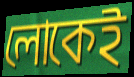
লোকেই